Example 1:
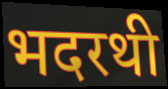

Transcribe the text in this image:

भदरथी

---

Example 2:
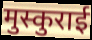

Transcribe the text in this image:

मुस्कुराई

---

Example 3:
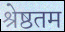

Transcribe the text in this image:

श्रेष्ठतम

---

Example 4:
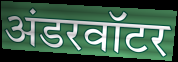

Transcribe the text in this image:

अंडरवॉटर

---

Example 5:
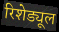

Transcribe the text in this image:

रिशेड्यूल